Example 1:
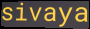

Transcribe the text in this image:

sivaya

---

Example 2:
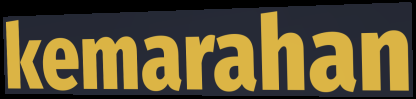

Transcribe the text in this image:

kemarahan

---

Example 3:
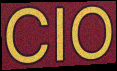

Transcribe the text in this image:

CIO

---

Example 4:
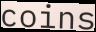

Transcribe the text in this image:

coins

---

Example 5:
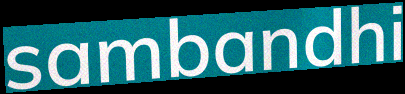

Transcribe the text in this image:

sambandhi